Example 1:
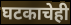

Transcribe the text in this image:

घटकाचेही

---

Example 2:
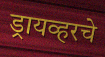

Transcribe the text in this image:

ड्रायव्हरचे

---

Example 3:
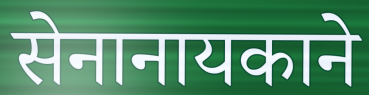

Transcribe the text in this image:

सेनानायकाने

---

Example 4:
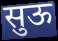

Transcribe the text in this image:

सुऊ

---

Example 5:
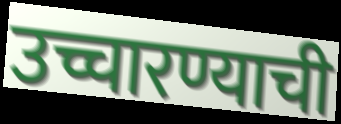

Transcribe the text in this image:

उच्चारण्याची